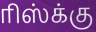
ரிஸ்க்கு